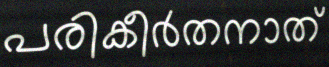
പരികീർതനാത്